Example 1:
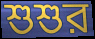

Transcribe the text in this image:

শুশুর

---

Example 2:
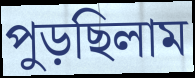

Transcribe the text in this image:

পুড়ছিলাম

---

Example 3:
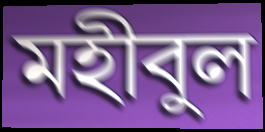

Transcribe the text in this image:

মহীবুল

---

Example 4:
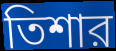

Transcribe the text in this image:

তিশার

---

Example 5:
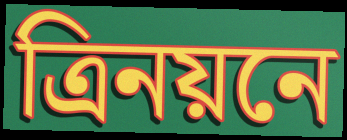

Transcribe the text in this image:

ত্রিনয়নে